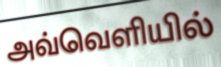
அவ்வெளியில்